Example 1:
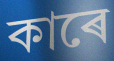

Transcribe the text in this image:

কাৰে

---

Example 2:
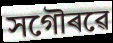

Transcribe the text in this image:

সগৌৰৱে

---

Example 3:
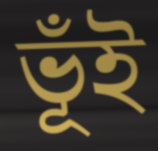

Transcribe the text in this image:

ভূঁই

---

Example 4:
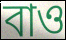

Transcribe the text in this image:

বাও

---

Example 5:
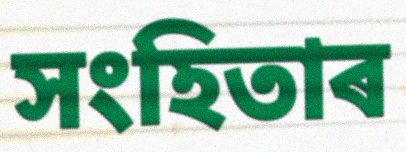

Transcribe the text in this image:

সংহিতাৰ